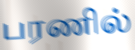
பரணில்